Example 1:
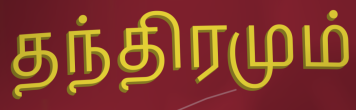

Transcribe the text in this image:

தந்திரமும்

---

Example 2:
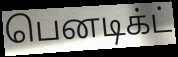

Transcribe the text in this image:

பெனடிக்ட்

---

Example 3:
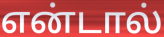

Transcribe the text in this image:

என்டால்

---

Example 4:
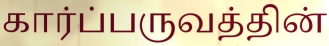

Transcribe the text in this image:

கார்ப்பருவத்தின்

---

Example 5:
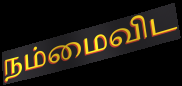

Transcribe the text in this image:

நம்மைவிட